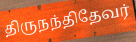
திருநந்திதேவர்